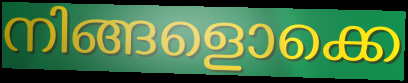
നിങ്ങളൊക്കെ